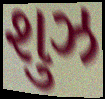
શુઝ